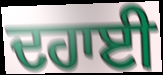
ਦਹਾਈ